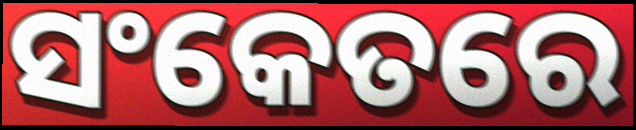
ସଂକେତରେ